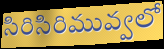
సిరిసిరిమువ్వలో